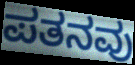
ಪತನವು